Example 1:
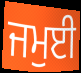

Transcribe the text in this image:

ਜਮੁਈ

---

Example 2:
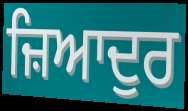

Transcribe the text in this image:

ਜ਼ਿਆਦੁਰ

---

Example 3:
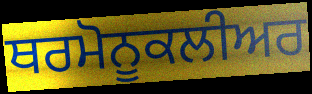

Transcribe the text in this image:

ਥਰਮੋਨੂਕਲੀਅਰ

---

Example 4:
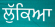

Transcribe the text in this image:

ਲੁੱਕਿਆ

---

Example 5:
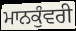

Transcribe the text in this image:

ਮਾਨਕੁੰਵਰੀ